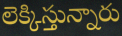
లెక్కిస్తున్నారు